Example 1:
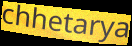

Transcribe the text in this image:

chhetarya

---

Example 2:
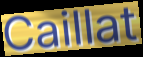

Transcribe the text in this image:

Caillat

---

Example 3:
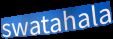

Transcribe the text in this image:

swatahala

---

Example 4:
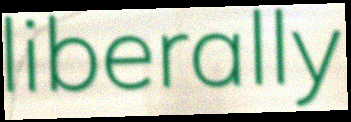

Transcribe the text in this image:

liberally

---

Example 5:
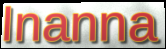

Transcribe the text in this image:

Inanna